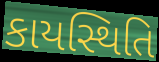
કાયસ્થિતિ